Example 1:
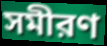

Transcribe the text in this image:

সমীরণ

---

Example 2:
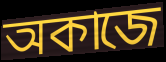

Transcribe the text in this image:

অকাজে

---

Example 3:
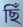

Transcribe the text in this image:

ছিঁ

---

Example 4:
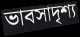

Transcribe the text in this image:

ভাবসাদৃশ্য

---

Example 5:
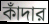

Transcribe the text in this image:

কাঁদার